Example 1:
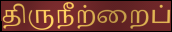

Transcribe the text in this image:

திருநீற்றைப்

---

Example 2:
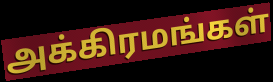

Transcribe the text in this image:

அக்கிரமங்கள்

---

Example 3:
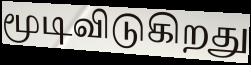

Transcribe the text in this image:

மூடிவிடுகிறது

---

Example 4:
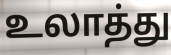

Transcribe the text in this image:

உலாத்து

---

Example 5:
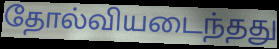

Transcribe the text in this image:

தோல்வியடைந்தது